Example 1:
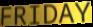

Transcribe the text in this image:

FRIDAY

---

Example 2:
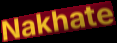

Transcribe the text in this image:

Nakhate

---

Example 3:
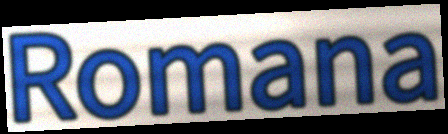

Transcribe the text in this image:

Romana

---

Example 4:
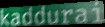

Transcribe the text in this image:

kaddurai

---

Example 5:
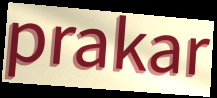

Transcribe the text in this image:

prakar